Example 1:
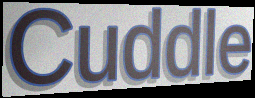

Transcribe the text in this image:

Cuddle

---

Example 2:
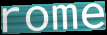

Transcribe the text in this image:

rome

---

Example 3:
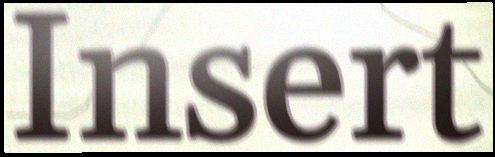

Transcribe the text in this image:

Insert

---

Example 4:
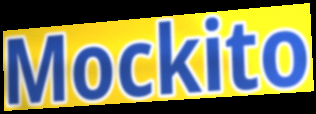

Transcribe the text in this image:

Mockito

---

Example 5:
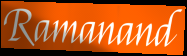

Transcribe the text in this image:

Ramanand